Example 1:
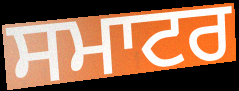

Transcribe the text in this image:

ਸਮਾਟਰ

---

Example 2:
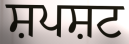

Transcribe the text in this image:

ਸ਼ਪਸ਼ਟ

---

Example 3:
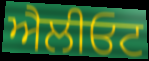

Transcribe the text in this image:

ਐਲੀਓਟ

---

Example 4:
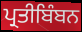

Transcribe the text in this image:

ਪ੍ਰਤੀਬਿੰਬਨ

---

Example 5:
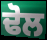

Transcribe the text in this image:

ਢੋਲ